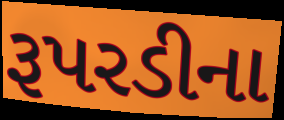
રૂપરડીના